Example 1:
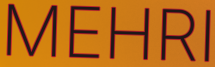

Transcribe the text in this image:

MEHRI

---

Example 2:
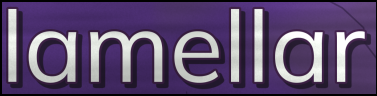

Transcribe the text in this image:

lamellar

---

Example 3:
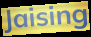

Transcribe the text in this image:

Jaising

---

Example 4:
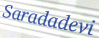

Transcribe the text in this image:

Saradadevi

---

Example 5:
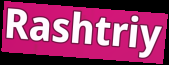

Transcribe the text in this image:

Rashtriy